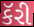
કૅરી